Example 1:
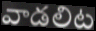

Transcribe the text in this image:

వాడలిట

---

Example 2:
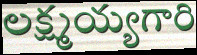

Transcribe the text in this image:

లక్ష్మయ్యగారి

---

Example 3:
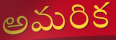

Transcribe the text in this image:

అమరిక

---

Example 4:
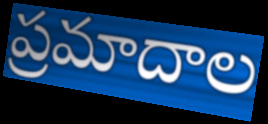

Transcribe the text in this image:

ప్రమాదాల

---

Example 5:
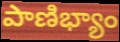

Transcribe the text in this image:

పాణిభ్యాం